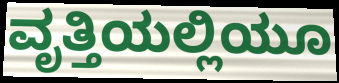
ವೃತ್ತಿಯಲ್ಲಿಯೂ